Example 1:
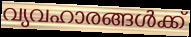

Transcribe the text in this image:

വ്യവഹാരങ്ങൾക്ക്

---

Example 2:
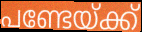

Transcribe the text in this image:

പണ്ടേയ്ക്ക്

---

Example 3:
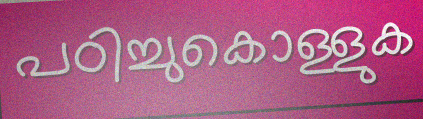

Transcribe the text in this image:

പഠിച്ചുകൊള്ളുക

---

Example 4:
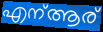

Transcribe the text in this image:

എന്ആര്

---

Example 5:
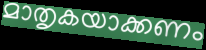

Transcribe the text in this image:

മാതൃകയാക്കണം